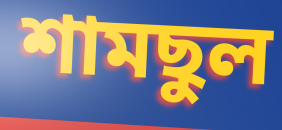
শামছুল